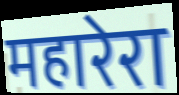
महारेरा